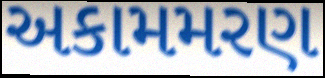
અકામમરણ